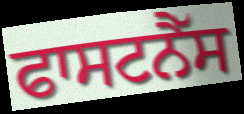
ਫਾਸਟਨੈੱਸ